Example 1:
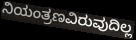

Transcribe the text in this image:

ನಿಯಂತ್ರಣವಿರುವುದಿಲ್ಲ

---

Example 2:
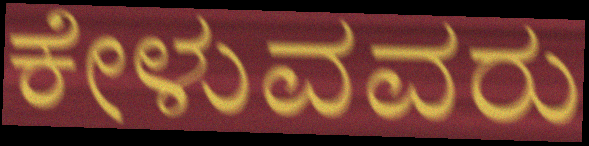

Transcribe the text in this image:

ಕೇಳುವವರು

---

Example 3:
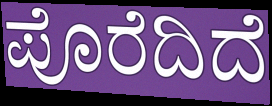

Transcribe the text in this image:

ಪೊರೆದಿದೆ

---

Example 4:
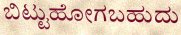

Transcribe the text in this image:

ಬಿಟ್ಟುಹೋಗಬಹುದು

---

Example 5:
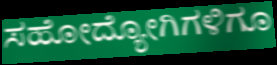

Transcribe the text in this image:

ಸಹೋದ್ಯೋಗಿಗಳಿಗೂ